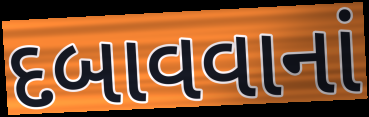
દબાવવાનાં